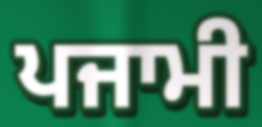
ਪਜਾਮੀ